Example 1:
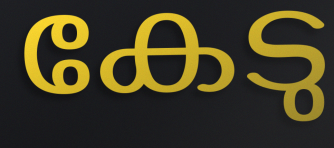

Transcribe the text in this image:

കേടു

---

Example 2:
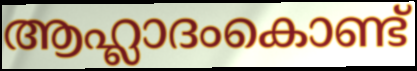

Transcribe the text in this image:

ആഹ്ലാദംകൊണ്ട്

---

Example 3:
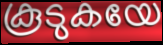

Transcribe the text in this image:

കൂടുകയേ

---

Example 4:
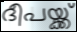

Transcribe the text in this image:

ദീപയ്ക്ക്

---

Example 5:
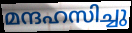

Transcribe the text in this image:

മന്ദഹസിച്ചു